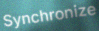
Synchronize